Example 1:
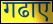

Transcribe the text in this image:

गढाए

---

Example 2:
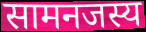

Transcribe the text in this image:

सामनजस्य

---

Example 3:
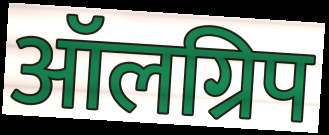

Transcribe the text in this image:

ऑलग्रिप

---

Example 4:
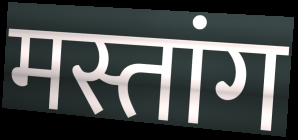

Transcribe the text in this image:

मस्तांग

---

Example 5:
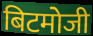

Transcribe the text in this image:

बिटमोजी